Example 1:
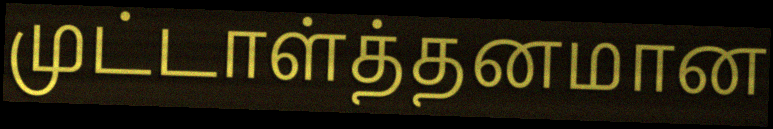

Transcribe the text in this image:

முட்டாள்த்தனமான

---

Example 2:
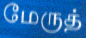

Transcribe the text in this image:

மேருத்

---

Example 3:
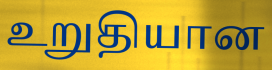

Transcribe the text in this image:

உறுதியான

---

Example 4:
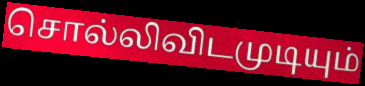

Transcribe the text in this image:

சொல்லிவிடமுடியும்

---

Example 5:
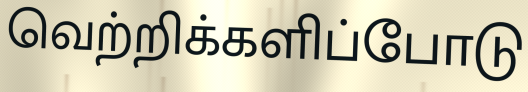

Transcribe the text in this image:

வெற்றிக்களிப்போடு